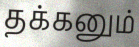
தக்கனும்